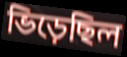
ভিড়েছিল